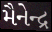
મૈનેન્દ્ર